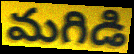
మగిడి